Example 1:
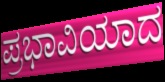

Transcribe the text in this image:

ಪ್ರಭಾವಿಯಾದ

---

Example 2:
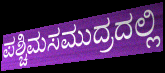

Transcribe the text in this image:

ಪಶ್ಚಿಮಸಮುದ್ರದಲ್ಲಿ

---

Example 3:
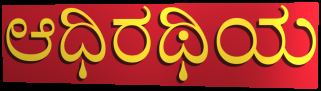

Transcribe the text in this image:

ಆಧಿರಥಿಯ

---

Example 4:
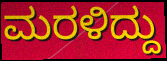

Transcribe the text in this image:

ಮರಳಿದ್ದು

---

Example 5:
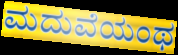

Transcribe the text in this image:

ಮದುವೆಯಂಥ